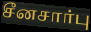
சீனசார்பு